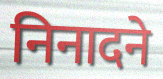
निनादने